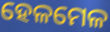
ହେଳମେଳ